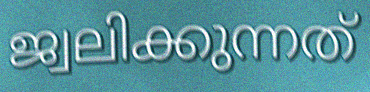
ജ്വലിക്കുന്നത്